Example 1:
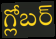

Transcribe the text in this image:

గ్లోబర్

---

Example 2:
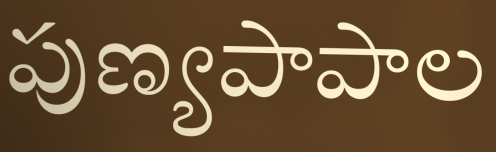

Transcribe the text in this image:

పుణ్యపాపాల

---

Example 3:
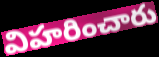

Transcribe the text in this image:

విహరించారు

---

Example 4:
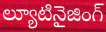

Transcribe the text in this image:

ల్యూటినైజింగ్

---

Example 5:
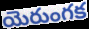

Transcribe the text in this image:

యెరుంగక